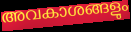
അവകാശങ്ങളും